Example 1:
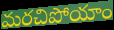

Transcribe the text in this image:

మరచిపోయాం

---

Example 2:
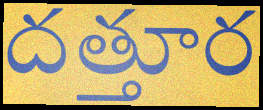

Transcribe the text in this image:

దత్తూర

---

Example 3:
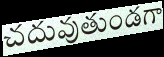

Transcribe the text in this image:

చదువుతుండగా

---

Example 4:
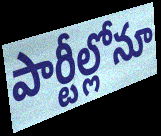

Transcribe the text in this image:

పార్టీల్లోనూ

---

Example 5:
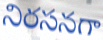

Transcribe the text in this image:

నిరసనగా